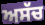
ਅਸੱਚ